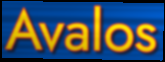
Avalos